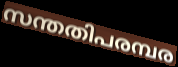
സന്തതിപരമ്പര